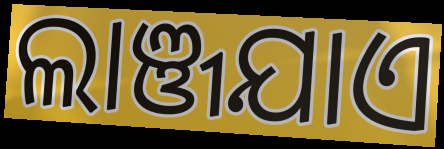
ଲାଞ୍ଜଯାଏ